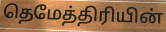
தெமேத்திரியின்